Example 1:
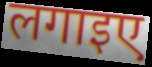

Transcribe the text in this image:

लगाइए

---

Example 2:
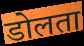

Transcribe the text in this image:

डोलता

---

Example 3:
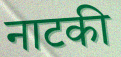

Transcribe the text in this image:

नाटकी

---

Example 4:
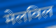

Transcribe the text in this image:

मेलविल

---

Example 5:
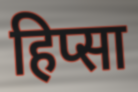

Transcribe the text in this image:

हिप्सा